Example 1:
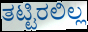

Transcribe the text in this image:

ತಟ್ಟಿರಲಿಲ್ಲ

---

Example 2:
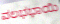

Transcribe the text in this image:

ವಲಭಭಾಯಿ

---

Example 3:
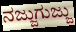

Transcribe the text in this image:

ನಜ್ಜುಗುಜ್ಜು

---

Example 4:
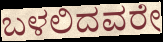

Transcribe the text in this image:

ಬಳಲಿದವರೇ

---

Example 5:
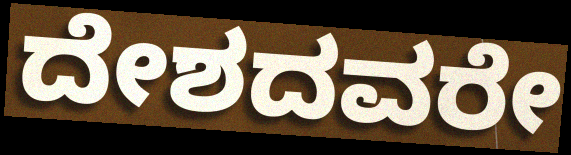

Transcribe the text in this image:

ದೇಶದವರೇ